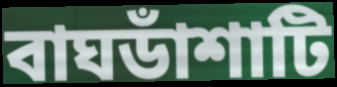
বাঘডাঁশাটি